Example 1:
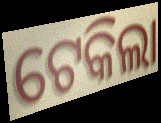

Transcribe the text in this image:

ଟେକିଲା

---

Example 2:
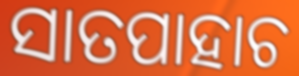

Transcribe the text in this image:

ସାତପାହାଚ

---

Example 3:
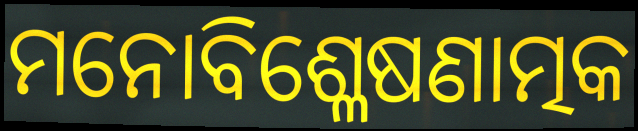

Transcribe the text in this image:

ମନୋବିଶ୍ଳେଷଣାତ୍ମକ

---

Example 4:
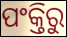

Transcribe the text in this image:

ପଂକ୍ତିରୁ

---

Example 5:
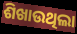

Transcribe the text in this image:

ଶିଖାଉଥିଲା